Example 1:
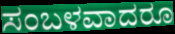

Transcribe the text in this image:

ಸಂಬಳವಾದರೂ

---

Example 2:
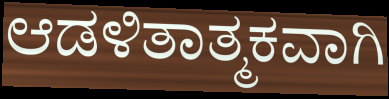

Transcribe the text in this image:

ಆಡಳಿತಾತ್ಮಕವಾಗಿ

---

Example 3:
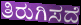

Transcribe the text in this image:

ತಿರುಗಿಸದೆ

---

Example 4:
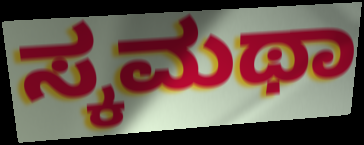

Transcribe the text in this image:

ಸ್ಕಮಥಾ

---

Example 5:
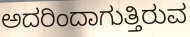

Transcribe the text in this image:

ಅದರಿಂದಾಗುತ್ತಿರುವ